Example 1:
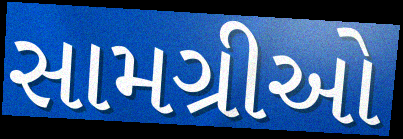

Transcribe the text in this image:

સામગ્રીઓ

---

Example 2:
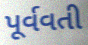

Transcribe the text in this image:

પૂર્વવતી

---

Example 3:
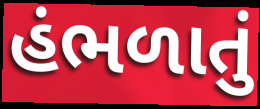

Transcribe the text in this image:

હંભળાતું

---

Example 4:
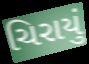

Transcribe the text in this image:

ચિરાયું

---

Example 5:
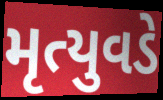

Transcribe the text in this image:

મૃત્યુવડે